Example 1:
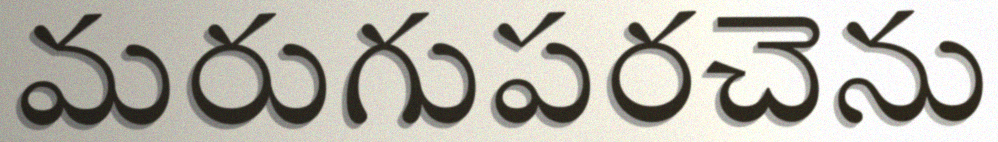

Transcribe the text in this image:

మరుగుపరచెను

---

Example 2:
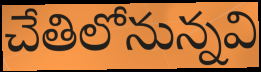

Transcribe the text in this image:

చేతిలోనున్నవి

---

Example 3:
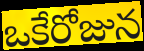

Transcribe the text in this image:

ఒకేరోజున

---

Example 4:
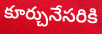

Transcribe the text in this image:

కూర్చునేసరికి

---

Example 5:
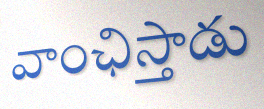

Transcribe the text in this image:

వాంఛిస్తాడు